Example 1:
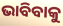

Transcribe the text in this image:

ଭାବିବାକୁ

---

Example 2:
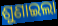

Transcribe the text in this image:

ଶୁଣାଇଲା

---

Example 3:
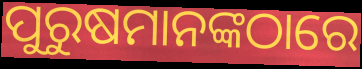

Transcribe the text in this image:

ପୁରୁଷମାନଙ୍କଠାରେ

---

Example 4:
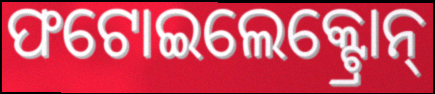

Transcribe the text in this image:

ଫଟୋଇଲେକ୍ଟ୍ରୋନ୍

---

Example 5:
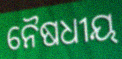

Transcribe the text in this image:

ନୈଷଧୀୟ